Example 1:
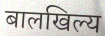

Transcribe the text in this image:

बालखिल्य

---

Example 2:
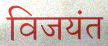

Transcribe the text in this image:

विजयंत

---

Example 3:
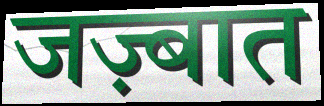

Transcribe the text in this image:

जज़्बात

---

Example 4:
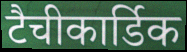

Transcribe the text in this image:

टैचीकार्डिक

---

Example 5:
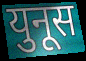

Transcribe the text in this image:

युनूस